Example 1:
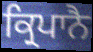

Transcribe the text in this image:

ਕ੍ਰਿਪਾਨੈ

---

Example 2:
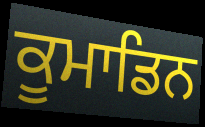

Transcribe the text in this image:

ਕੂਮਾਡਿਨ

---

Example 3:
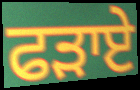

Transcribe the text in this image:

ਫੜਾਏ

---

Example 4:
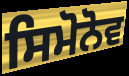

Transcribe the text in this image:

ਸਿਮੋਨੋਵ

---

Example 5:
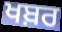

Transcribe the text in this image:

ਖਬ਼ਰ